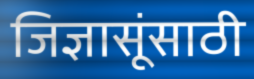
जिज्ञासूंसाठी